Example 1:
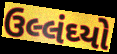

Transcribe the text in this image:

ઉલ્લંઘ્યો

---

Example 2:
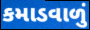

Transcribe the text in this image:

કમાડવાળું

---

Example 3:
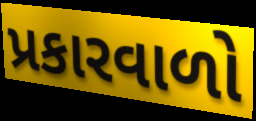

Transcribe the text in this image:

પ્રકારવાળો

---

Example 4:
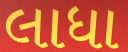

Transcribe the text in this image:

લાધા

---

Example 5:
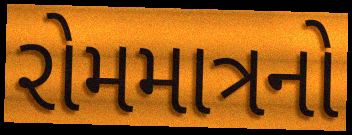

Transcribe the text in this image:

રોમમાત્રનો